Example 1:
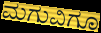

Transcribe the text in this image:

ಮಗುವಿಗೂ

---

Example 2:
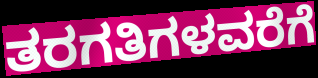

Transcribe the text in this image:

ತರಗತಿಗಳವರೆಗೆ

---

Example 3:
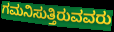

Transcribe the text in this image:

ಗಮನಿಸುತ್ತಿರುವವರು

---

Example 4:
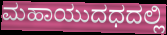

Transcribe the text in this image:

ಮಹಾಯುದಧದಲ್ಲಿ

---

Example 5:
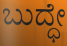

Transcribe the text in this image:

ಬುದ್ಧೇ